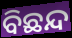
ବିଛନ୍ଦ